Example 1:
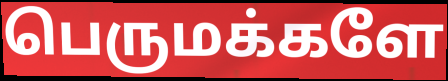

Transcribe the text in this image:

பெருமக்களே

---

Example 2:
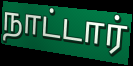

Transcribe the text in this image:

நாட்டார்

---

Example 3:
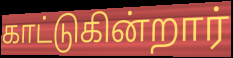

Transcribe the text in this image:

காட்டுகின்றார்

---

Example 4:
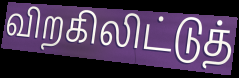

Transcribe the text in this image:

விறகிலிட்டுத்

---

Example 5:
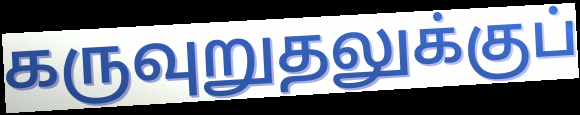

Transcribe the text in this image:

கருவுறுதலுக்குப்